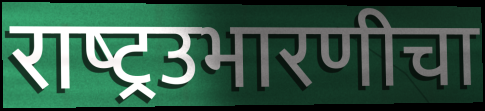
राष्ट्रउभारणीचा